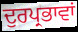
ਦੁਰਪ੍ਰਭਾਵਾਂ